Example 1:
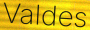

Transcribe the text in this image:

Valdes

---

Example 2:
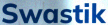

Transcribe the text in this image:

Swastik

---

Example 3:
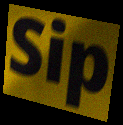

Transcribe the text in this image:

Sip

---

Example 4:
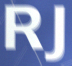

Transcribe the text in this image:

RJ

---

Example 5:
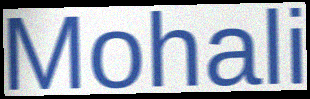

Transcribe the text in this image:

Mohali